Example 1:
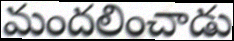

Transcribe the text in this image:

మందలించాడు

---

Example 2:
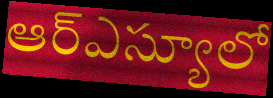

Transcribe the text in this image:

ఆర్ఎస్యూలో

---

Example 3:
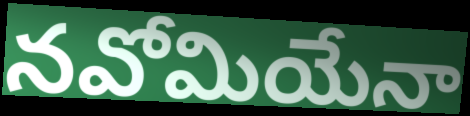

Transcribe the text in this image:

నవోమియేనా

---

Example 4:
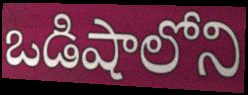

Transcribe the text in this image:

ఒడిషాలోని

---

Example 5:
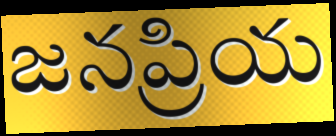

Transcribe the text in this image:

జనప్రియ